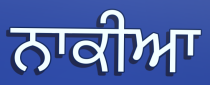
ਨਾਕੀਆ